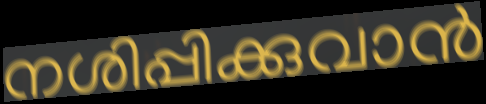
നശിപ്പിക്കുവാൻ